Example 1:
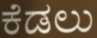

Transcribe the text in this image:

ಕೆಡಲು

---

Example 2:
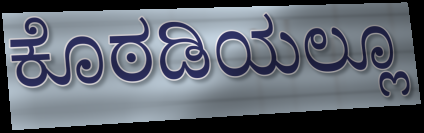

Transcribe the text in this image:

ಕೊಠಡಿಯಲ್ಲೂ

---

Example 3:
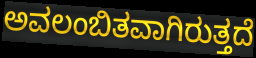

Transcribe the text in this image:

ಅವಲಂಬಿತವಾಗಿರುತ್ತದೆ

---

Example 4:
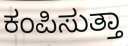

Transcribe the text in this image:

ಕಂಪಿಸುತ್ತಾ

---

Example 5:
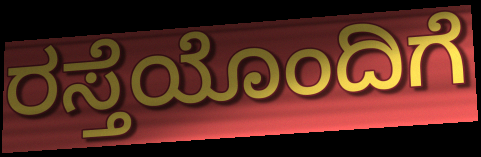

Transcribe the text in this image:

ರಸ್ತೆಯೊಂದಿಗೆ